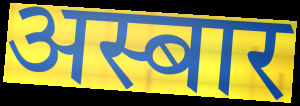
अस्बार